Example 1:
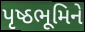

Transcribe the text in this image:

પૃષ્ઠભૂમિને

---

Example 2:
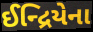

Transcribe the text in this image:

ઈન્દ્રિયેના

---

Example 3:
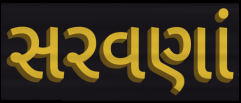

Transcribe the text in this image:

સરવણાં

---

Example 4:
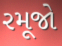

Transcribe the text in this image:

રમૂજો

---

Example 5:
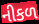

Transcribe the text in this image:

નીકળ